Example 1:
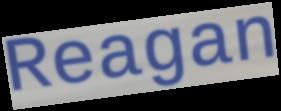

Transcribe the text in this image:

Reagan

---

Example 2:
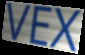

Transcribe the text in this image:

VEX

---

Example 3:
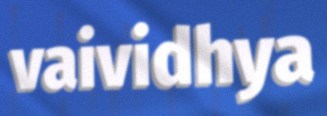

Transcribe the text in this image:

vaividhya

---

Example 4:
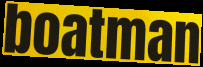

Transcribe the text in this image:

boatman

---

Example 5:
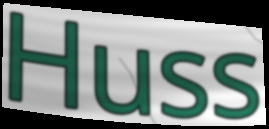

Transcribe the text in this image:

Huss